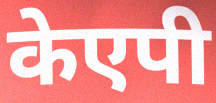
केएपी